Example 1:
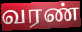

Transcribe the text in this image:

வரண்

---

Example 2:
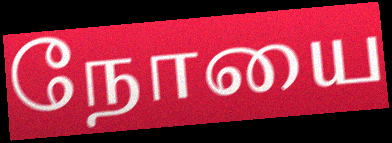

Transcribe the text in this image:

நோயை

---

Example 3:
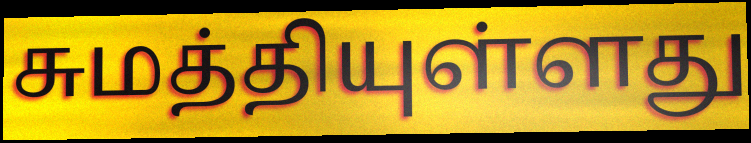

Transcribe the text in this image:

சுமத்தியுள்ளது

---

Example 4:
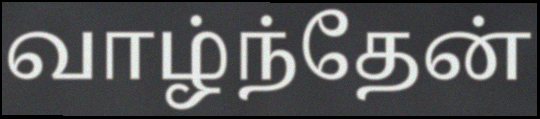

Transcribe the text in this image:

வாழ்ந்தேன்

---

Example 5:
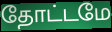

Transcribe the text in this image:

தோட்டமே